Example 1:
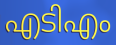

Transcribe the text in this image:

എടിഎം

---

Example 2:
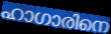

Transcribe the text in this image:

ഹാഗാരിനെ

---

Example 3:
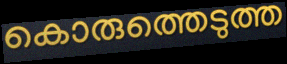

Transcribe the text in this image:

കൊരുത്തെടുത്ത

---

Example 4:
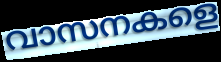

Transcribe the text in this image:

വാസനകളെ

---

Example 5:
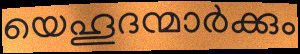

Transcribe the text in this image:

യെഹൂദന്മാർക്കും